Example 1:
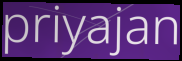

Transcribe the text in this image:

priyajan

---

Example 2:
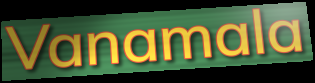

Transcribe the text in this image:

Vanamala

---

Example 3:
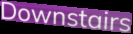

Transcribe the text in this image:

Downstairs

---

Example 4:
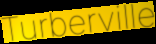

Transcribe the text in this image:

Turberville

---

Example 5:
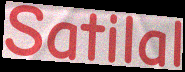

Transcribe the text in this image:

Satilal